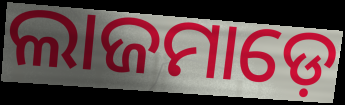
ଲାଜମାଡ଼େ